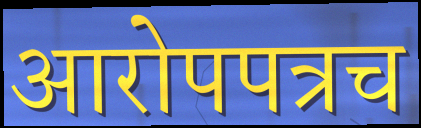
आरोपपत्रच